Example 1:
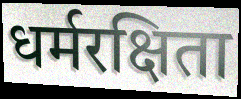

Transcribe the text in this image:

धर्मरक्षिता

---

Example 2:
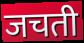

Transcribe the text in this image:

जचती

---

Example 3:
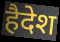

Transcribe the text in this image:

हैदेश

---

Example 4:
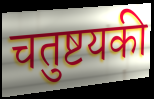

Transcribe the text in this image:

चतुष्टयकी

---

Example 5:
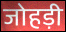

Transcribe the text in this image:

जोहड़ी